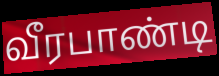
வீரபாண்டி